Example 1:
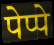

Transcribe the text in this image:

पेप्पे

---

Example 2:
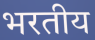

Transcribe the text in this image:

भरतीय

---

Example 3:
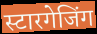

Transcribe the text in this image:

स्टारगेजिंग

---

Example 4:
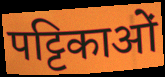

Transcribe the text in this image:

पट्टिकाओं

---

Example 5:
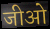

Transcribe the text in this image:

जीओ